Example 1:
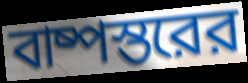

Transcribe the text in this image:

বাষ্পস্তরের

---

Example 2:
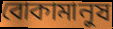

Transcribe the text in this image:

বোকামানুষ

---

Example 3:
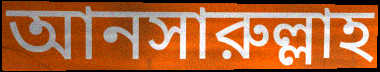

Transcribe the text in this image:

আনসারুল্লাহ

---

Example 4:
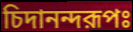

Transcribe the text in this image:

চিদানন্দরূপঃ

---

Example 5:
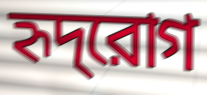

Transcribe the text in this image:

হৃদ্‌রোগ